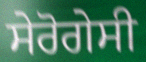
ਸੇਰੋਗੇਸੀ